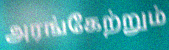
அரங்கேற்றும்